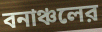
বনাঞ্চলের